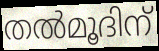
തൽമൂദിന്